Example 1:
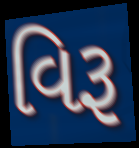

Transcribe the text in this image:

વિરૂ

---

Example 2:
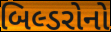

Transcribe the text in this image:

બિલ્ડરોનો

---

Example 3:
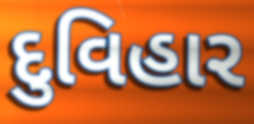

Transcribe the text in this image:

દુવિહાર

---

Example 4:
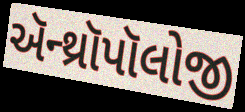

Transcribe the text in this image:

ઍન્થ્રૉપૉલોજી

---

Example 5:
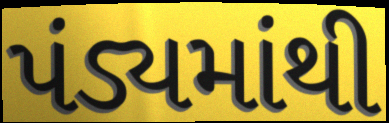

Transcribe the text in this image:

પંડ્યમાંથી